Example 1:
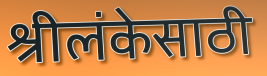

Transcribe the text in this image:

श्रीलंकेसाठी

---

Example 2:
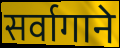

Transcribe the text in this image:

सर्वागाने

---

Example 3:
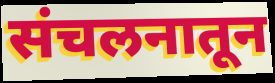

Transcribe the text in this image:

संचलनातून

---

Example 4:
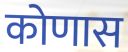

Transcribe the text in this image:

कोणास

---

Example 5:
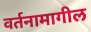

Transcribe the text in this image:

वर्तनामागील